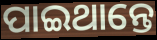
ପାଇଥାନ୍ତେ